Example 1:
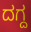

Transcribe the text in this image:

ದಗ್ದ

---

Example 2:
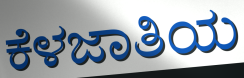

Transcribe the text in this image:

ಕೆಳಜಾತಿಯ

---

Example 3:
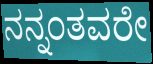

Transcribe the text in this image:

ನನ್ನಂತವರೇ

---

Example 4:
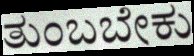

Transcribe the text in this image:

ತುಂಬಬೇಕು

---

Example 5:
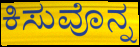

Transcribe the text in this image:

ಕಿಸುವೊನ್ನ